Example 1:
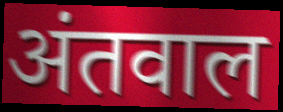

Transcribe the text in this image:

अंतवाल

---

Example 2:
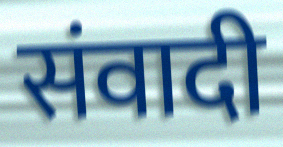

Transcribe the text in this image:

संवादी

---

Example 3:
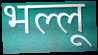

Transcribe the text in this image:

भल्लू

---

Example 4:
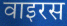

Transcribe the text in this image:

वाइरस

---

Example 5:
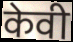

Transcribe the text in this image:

केवी